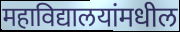
महाविद्यालयांमधील